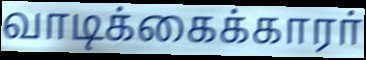
வாடிக்கைக்காரர்